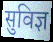
सुविज्ञ